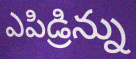
ఎపిడ్రిన్ను